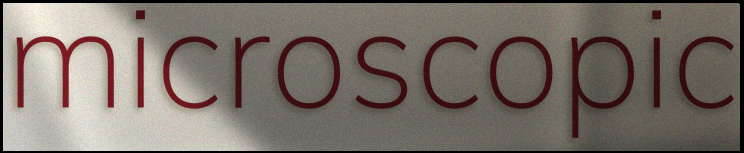
microscopic